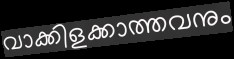
വാക്കിളക്കാത്തവനും